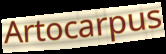
Artocarpus